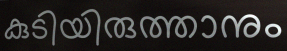
കുടിയിരുത്താനും